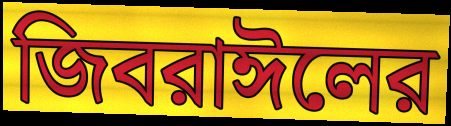
জিবরাঈলের